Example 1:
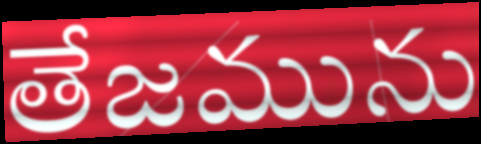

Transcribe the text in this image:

తేజమును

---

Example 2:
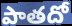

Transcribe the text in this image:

పాతదో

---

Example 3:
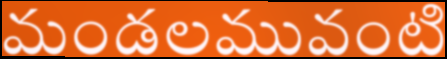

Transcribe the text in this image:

మండలమువంటి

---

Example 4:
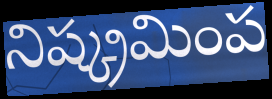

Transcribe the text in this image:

నిష్క్రమింప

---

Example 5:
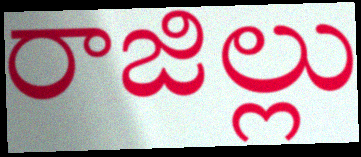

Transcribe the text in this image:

రాజిల్లు